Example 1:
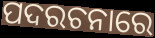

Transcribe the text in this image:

ପଦରଚନାରେ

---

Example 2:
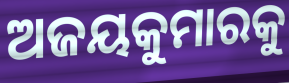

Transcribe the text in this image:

ଅଜୟକୁମାରକୁ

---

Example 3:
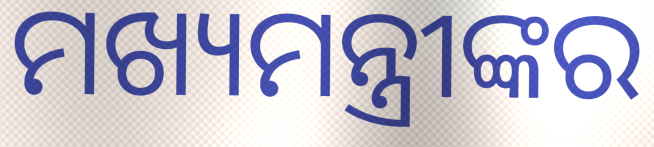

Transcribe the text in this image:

ମଖ୍ୟମନ୍ତ୍ରୀଙ୍କର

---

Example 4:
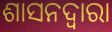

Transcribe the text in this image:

ଶାସନଦ୍ୱାରା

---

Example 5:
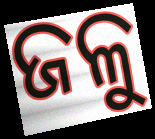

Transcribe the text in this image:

ଜଳୁ